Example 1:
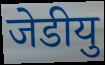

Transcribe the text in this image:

जेडीयु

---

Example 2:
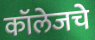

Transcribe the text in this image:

कॉलेजचे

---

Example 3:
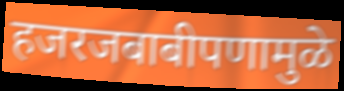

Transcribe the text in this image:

हजरजबाबीपणामुळे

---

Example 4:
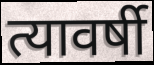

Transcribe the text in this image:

त्यावर्षी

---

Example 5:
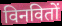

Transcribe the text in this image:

विनवितों